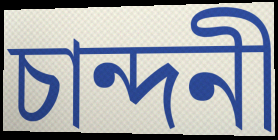
চান্দনী